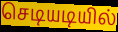
செடியடியில்